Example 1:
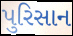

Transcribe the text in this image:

પુરિસાન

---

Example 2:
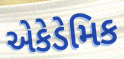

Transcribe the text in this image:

એકેડેમિક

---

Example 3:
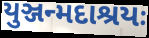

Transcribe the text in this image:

યુઞ્જન્મદાશ્રયઃ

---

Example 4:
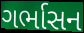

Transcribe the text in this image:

ગર્ભાસન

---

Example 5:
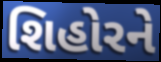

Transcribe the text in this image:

શિહોરને